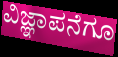
ವಿಜ್ಞಾಪನೆಗೂ